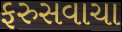
ફરુસવાચા